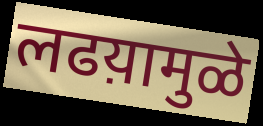
लढय़ामुळे